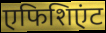
एफिशिएंट